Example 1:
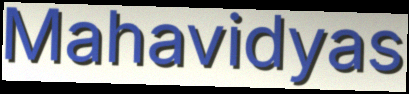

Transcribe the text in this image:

Mahavidyas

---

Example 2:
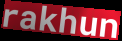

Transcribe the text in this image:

rakhun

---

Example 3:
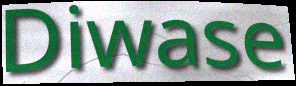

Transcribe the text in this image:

Diwase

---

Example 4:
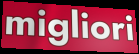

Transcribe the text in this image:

migliori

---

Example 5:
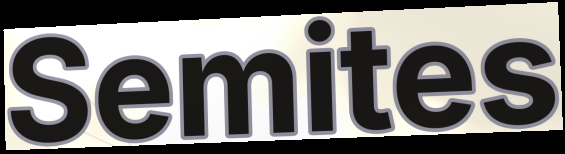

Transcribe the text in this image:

Semites